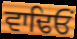
ਵਾਢਿਓਂ